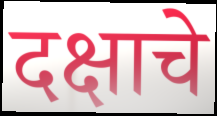
दक्षाचे